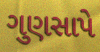
ગુણસાપે